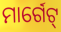
ମାର୍ଗେଟ୍